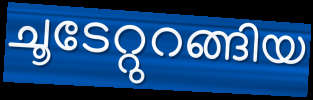
ചൂടേറ്റുറങ്ങിയ